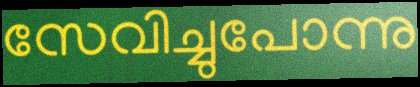
സേവിച്ചുപോന്നു